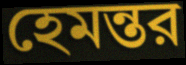
হেমন্তর